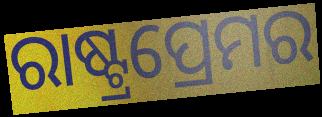
ରାଷ୍ଟ୍ରପ୍ରେମର